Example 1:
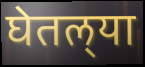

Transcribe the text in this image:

घेतल्या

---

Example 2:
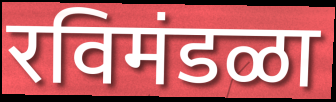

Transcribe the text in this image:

रविमंडळा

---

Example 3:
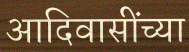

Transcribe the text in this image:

आदिवासींच्या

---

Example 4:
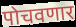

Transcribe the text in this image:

पोचवणार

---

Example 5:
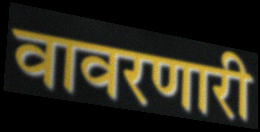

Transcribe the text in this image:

वावरणारी